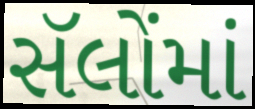
સૅલોંમાં